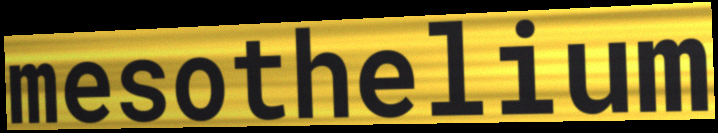
mesothelium